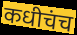
कधीचंच